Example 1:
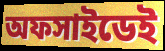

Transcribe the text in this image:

অফসাইডেই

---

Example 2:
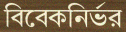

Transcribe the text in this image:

বিবেকনির্ভর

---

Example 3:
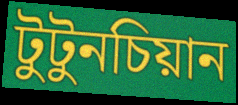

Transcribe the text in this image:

টুটুনচিয়ান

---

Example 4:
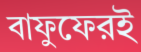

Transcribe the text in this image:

বাফুফেরই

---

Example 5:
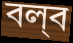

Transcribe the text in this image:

বল্‌ব